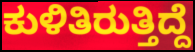
ಕುಳಿತಿರುತ್ತಿದ್ದೆ